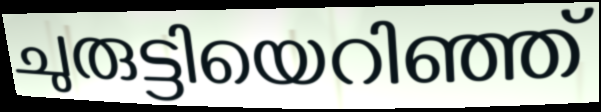
ചുരുട്ടിയെറിഞ്ഞ്